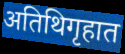
अतिथिगृहात